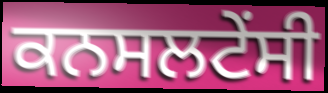
ਕਨਸਲਟੇਂਸੀ